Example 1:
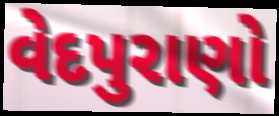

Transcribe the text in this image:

વેદપુરાણો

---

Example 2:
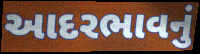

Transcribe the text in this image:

આદરભાવનું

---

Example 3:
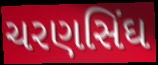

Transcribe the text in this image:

ચરણસિંઘ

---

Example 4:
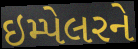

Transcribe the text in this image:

ઇમ્પેલરને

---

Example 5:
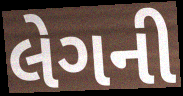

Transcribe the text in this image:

લેગની